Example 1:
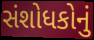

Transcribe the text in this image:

સંશોધકોનું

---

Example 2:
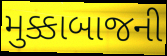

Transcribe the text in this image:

મુક્કાબાજની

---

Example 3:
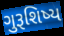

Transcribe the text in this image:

ગુરૂશિષ્ય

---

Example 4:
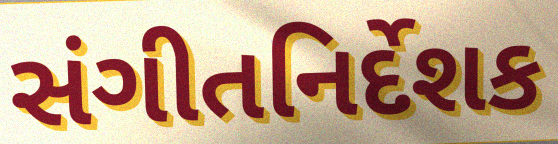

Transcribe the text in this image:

સંગીતનિર્દેશક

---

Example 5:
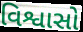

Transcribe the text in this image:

વિશ્વાસો